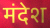
मंदेश